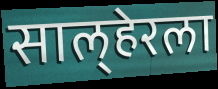
साल्हेरला